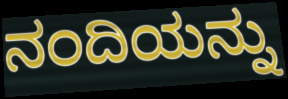
ನಂದಿಯನ್ನು